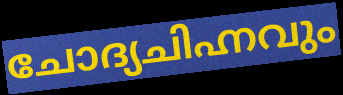
ചോദ്യചിഹ്നവും